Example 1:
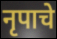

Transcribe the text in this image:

नृपाचे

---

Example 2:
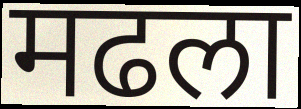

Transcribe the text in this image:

मढला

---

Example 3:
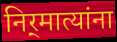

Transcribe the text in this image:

निर्मात्यांना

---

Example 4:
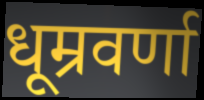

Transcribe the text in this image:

धूम्रवर्णा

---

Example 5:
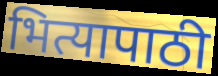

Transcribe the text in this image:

भित्यापाठी